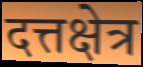
दत्तक्षेत्र